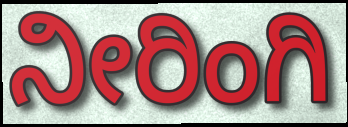
ನೀರಿಂಗಿ